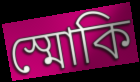
স্মোকি